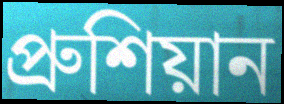
প্রুশিয়ান